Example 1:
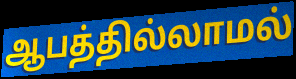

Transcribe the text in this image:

ஆபத்தில்லாமல்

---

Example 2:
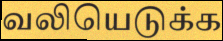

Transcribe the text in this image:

வலியெடுக்க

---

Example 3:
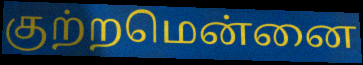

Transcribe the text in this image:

குற்றமென்னை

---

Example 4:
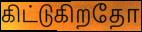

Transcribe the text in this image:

கிட்டுகிறதோ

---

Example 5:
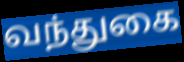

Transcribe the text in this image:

வந்துகை